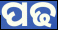
ପଢ